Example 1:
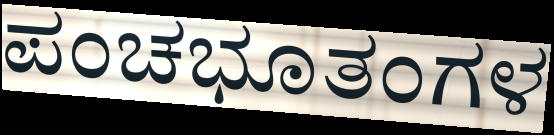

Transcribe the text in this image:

ಪಂಚಭೂತಂಗಳ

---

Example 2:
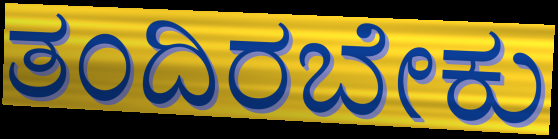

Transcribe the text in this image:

ತಂದಿರಬೇಕು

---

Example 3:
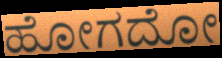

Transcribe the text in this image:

ಹೋಗದೋ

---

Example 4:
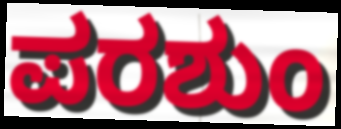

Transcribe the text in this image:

ಪರಶುಂ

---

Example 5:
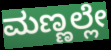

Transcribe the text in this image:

ಮಣ್ಣಲ್ಲೇ